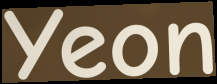
Yeon